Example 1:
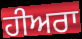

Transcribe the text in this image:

ਹੀਅਰਾ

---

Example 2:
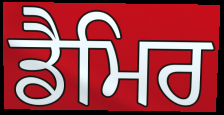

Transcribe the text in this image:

ਡੈਮਿਰ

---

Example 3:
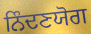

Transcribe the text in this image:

ਨਿੰਦਣਯੋਗ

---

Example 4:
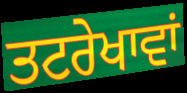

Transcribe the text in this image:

ਤਟਰੇਖਾਵਾਂ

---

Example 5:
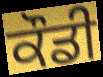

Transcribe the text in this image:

ਕੌਡੀ